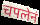
चपलेनं